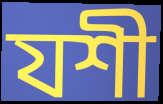
যশী